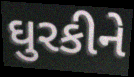
ઘુરકીને